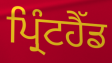
ਪ੍ਰਿੰਟਹੈੱਡ